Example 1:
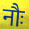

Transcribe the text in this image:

नौः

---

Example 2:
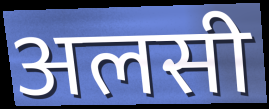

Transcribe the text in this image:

अलसी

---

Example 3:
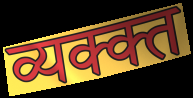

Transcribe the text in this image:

व्यक्क्त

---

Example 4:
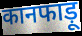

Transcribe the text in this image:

कानफाड़ू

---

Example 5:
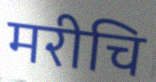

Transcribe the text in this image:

मरीचि